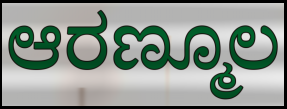
ಆರಣ್ಮೂಲ